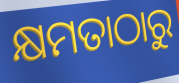
କ୍ଷମତାଠାରୁ